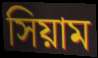
সিয়াম